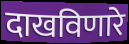
दाखविणारे